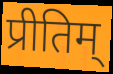
प्रीतिम्